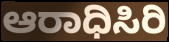
ಆರಾಧಿಸಿರಿ